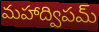
మహాద్విపమ్